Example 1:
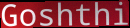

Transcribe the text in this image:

Goshthi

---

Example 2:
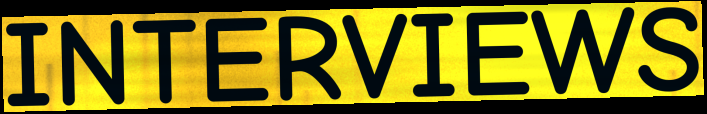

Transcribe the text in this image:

INTERVIEWS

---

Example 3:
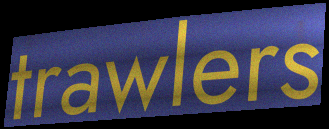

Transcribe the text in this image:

trawlers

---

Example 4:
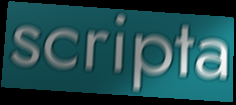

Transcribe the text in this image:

scripta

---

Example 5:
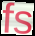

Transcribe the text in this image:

fs